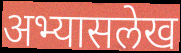
अभ्यासलेख